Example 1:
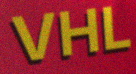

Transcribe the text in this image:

VHL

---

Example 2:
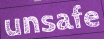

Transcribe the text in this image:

unsafe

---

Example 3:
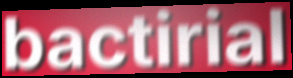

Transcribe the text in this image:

bactirial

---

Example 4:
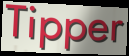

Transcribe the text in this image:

Tipper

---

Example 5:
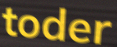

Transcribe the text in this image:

toder